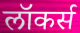
लॉकर्स